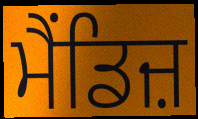
ਮੈਂਡਿਜ਼